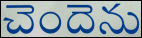
చెందెను